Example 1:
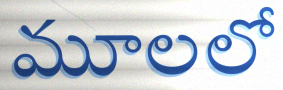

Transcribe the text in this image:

మూలలో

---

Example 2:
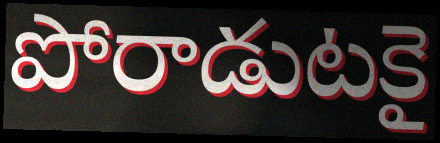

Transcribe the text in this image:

పోరాడుటకై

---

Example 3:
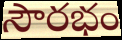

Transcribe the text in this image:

సౌరభం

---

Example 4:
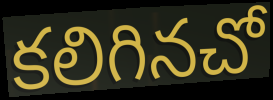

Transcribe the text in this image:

కలిగినచో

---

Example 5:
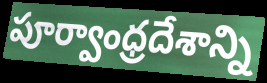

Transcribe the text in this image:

పూర్వాంధ్రదేశాన్ని